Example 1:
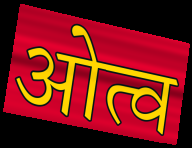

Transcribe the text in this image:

ओत्व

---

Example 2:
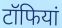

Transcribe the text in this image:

टॉफियां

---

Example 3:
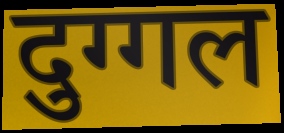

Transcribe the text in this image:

दुग्गल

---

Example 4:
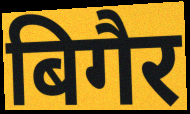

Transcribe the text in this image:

बिगैर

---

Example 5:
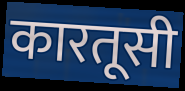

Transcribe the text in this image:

कारतूसी